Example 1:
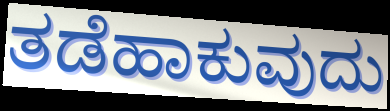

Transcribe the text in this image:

ತಡೆಹಾಕುವುದು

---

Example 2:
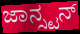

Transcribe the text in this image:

ಜಾನ್ಸ್ಟನ್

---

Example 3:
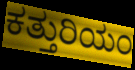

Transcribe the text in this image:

ಕತ್ತುರಿಯಂ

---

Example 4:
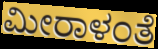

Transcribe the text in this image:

ಮೀರಾಳಂತೆ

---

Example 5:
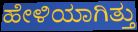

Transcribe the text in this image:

ಹೇಳಿಯಾಗಿತ್ತು